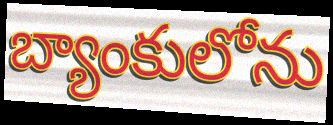
బ్యాంకులోను